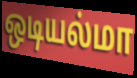
ஒடியல்மா